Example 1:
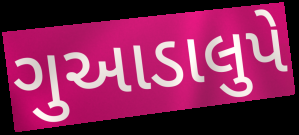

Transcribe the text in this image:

ગુઆડાલુપે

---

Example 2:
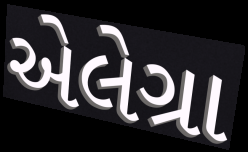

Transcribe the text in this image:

એલેગ્રા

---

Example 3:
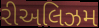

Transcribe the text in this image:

રીઅલિઝમ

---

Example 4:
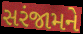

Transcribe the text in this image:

સરંજામને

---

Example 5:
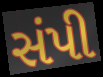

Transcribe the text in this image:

સંપી